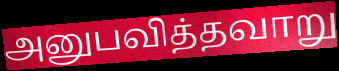
அனுபவித்தவாறு